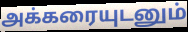
அக்கரையுடனும்